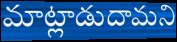
మాట్లాడుదామని